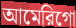
আমেরিগো